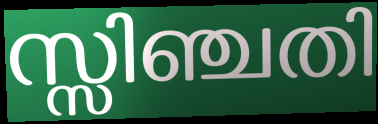
സ്സിഞ്ചതി